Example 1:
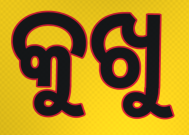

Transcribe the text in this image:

କୁଖୁ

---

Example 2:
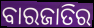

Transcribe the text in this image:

ବାରଜାତିର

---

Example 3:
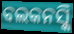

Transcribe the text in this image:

ବଲକନସ୍କି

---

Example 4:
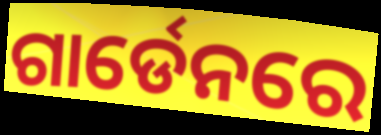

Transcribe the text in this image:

ଗାର୍ଡେନରେ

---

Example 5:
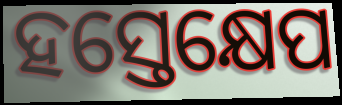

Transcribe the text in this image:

ହସ୍ତେକ୍ଷେପ